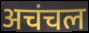
अचंचल